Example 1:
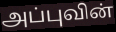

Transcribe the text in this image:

அப்புவின்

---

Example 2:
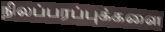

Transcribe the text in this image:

நிலப்பரப்புக்களை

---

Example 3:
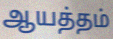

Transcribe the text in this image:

ஆயத்தம்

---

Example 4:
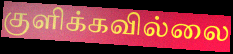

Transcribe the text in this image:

குளிக்கவில்லை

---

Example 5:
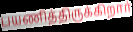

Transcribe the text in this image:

பயணித்திருக்கிறார்